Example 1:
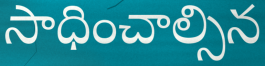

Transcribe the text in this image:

సాధించాల్సిన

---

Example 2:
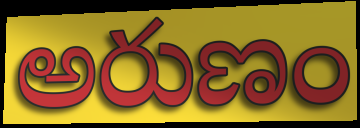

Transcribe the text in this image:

అరుణం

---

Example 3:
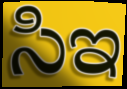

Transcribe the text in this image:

సిఇ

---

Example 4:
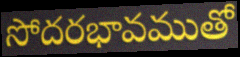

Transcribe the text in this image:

సోదరభావముతో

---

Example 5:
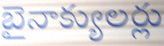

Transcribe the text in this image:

బైనాక్యులర్లు